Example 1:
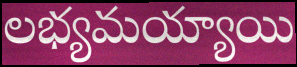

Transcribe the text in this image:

లభ్యమయ్యాయి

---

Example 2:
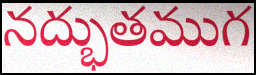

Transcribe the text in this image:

నద్భుతముగ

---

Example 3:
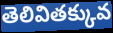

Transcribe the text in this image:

తెలివితక్కువ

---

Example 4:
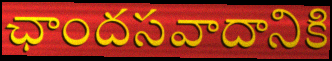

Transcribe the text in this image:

ఛాందసవాదానికి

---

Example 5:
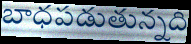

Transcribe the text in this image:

బాధపడుతున్నది